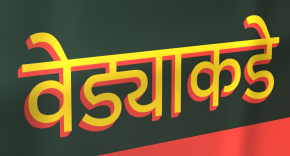
वेड्याकडे